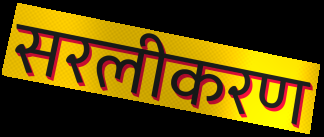
सरलीकरण